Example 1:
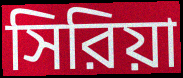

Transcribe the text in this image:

সিরিয়া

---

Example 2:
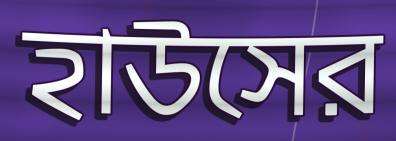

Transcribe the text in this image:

হাউসের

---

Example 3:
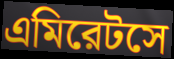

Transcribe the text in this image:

এমিরেটসে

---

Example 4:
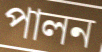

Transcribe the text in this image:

পালন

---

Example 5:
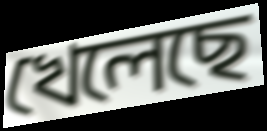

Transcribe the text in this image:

খেলেছে